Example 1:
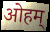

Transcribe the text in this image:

ओहम्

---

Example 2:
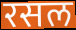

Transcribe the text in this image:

रसल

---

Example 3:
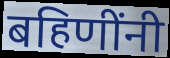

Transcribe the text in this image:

बहिणींनी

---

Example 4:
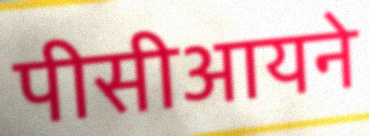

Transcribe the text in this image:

पीसीआयने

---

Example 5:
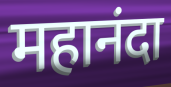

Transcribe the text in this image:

महानंदा